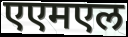
एएमएल